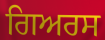
ਗਿਅਰਸ